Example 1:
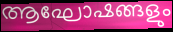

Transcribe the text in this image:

ആഘോഷങ്ങളും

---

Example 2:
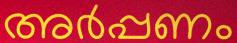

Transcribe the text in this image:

അർപ്പണം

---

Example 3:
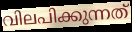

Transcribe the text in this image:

വിലപിക്കുന്നത്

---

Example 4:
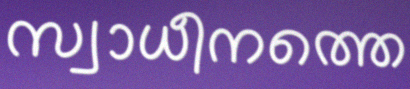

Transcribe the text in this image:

സ്വാധീനത്തെ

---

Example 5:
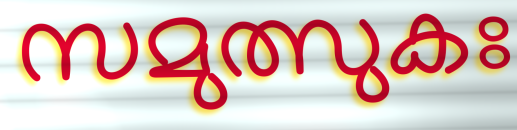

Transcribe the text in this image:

സമുത്സുകഃ